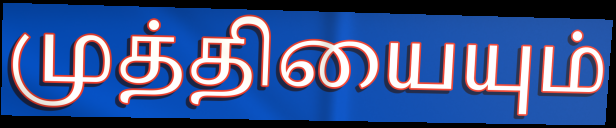
முத்தியையும்